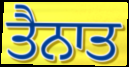
ਤੈਨਾਤ